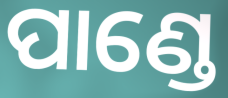
ପାଣ୍ଡେ